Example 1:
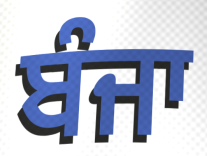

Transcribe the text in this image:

ਬੰਜਾ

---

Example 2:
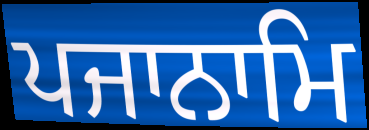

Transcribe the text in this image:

ਪਜਾਨਾਮਿ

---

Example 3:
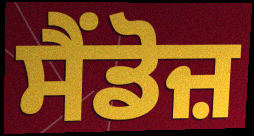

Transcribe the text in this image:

ਸੈਂਡੋਜ਼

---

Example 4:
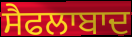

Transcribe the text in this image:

ਸੈਫਲਾਬਾਦ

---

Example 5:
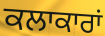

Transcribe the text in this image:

ਕਲਾਕਾਰਾਂ